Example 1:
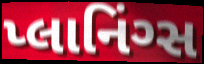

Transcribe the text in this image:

પ્લાનિંગ્સ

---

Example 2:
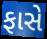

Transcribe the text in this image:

ફાસે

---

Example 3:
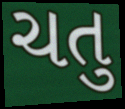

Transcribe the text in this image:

ચતુ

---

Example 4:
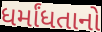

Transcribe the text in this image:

ધર્માંધતાનો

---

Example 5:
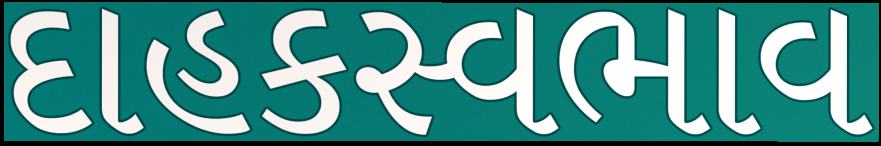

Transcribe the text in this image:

દાહકસ્વભાવ